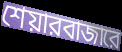
শেয়ারবাজারে